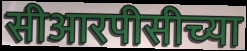
सीआरपीसीच्या